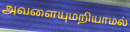
அவளையுமறியாமல்